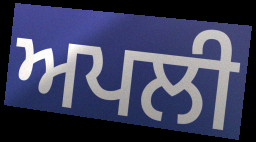
ਅਪਲੀ